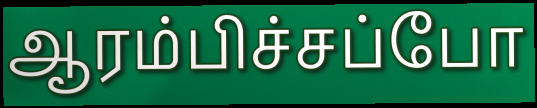
ஆரம்பிச்சப்போ